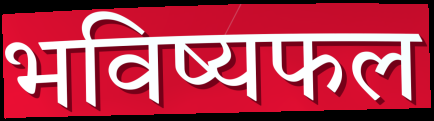
भविष्‍यफल